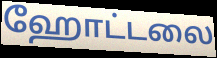
ஹோட்டலை